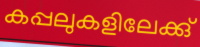
കപ്പലുകളിലേക്കു്